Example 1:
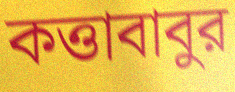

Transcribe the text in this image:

কত্তাবাবুর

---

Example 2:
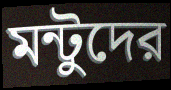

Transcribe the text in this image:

মন্টুদের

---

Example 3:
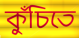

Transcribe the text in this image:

কুঁচিতে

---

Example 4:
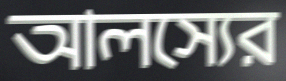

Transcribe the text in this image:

আলস্যের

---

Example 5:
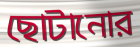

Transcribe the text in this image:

ছোটানোর